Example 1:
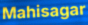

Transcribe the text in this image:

Mahisagar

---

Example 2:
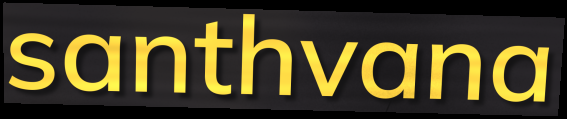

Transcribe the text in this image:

santhvana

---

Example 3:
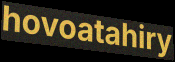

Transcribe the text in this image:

hovoatahiry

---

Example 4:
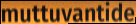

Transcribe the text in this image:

muttuvantide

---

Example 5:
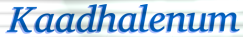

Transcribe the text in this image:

Kaadhalenum